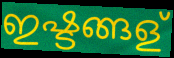
ഇഷ്ടങ്ങള്